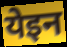
येइन